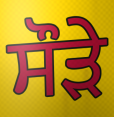
ਸੌੜੇ